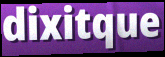
dixitque